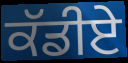
ਕੱਡੀਏ